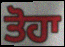
ਤੋਹਾ